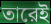
তারেই